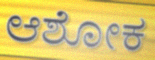
ಆಶೋಕ